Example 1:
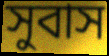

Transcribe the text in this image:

সুবাস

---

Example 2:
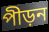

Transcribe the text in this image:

পীড়ন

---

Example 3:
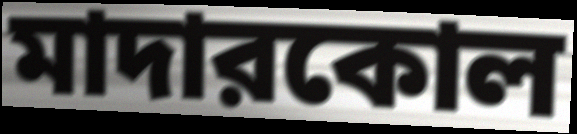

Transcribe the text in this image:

মাদারকোল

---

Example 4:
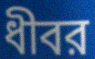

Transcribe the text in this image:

ধীবর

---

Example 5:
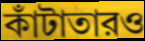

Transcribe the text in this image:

কাঁটাতারও